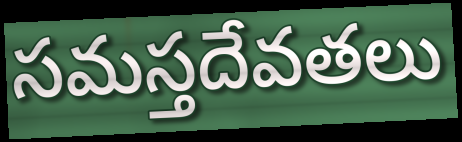
సమస్తదేవతలు